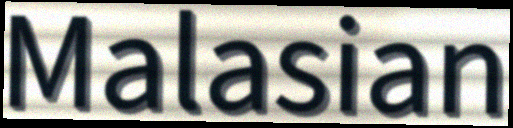
Malasian